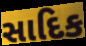
સાદિક